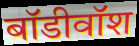
बॉडीवॉश